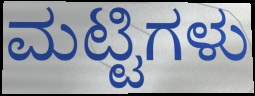
ಮಟ್ಟಿಗಳು